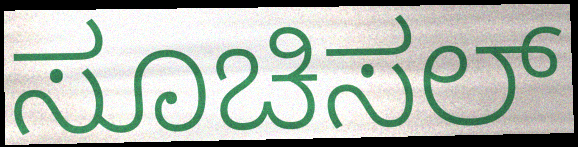
ಸೂಚಿಸಲ್